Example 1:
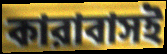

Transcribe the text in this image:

কারাবাসই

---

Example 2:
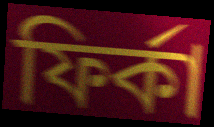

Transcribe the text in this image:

ফির্কা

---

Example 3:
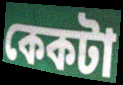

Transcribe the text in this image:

কেকটা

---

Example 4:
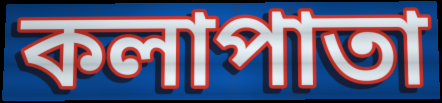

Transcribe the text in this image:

কলাপাতা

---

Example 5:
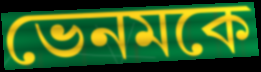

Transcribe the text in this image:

ভেনমকে